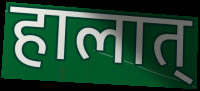
हालात्